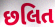
છલિત